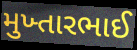
મુખ્તારભાઈ